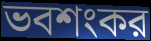
ভবশংকর